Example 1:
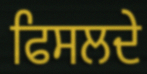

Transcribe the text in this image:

ਫਿਸਲਦੇ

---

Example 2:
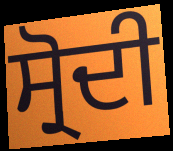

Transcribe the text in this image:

ਸ੍ਰੋਦੀ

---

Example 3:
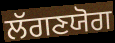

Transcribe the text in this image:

ਲੱਗਣਯੋਗ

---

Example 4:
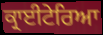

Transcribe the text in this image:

ਕ੍ਰਾਈਟੇਰਿਆ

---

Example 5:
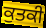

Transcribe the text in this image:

ਕੁਤਕੀ